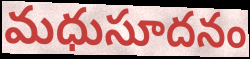
మధుసూదనం